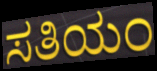
ಸತಿಯಂ